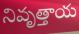
నివృత్తాయ